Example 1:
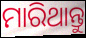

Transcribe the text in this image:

ମାରିଥାନ୍ତୁ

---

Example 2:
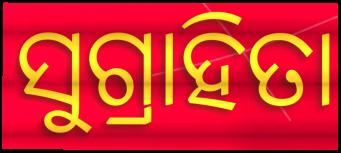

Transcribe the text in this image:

ସୁଗ୍ରାହିତା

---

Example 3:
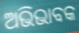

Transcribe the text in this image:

ଅଭିଭାବକ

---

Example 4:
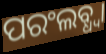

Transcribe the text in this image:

ପରଂଲବ୍ଧ୍ଵା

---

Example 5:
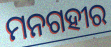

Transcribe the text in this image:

ମନଗହୀର